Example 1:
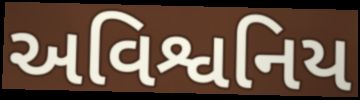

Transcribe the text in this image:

અવિશ્વનિય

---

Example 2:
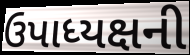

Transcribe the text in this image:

ઉપાધ્યક્ષની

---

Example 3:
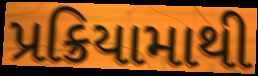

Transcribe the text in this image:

પ્રક્રિયામાથી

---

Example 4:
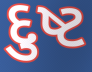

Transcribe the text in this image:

દુષ્ટ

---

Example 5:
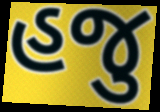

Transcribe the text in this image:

હજુ